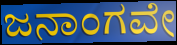
ಜನಾಂಗವೇ